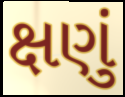
ક્ષણું